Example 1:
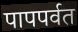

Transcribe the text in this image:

पापपर्वत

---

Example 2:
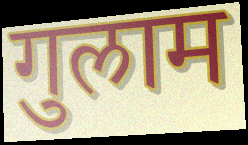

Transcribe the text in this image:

गुलाम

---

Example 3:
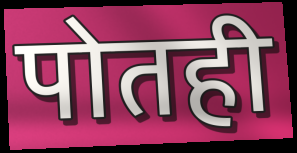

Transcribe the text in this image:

पोतही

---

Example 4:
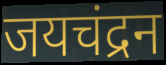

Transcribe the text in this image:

जयचंद्रन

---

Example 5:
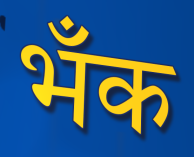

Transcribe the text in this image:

भँक